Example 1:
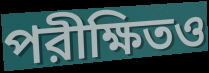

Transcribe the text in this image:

পরীক্ষিতও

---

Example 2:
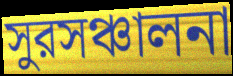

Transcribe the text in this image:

সুরসঞ্চালনা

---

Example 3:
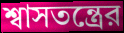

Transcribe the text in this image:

শ্বাসতন্ত্রের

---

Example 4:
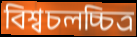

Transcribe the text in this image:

বিশ্বচলচ্চিত্র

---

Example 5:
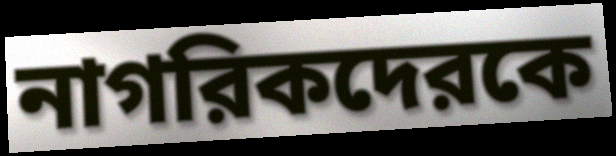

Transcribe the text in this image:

নাগরিকদেরকে